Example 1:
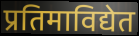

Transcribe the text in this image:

प्रतिमाविद्येत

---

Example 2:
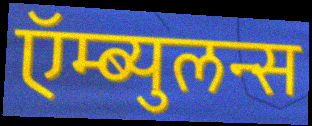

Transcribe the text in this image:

ऍम्ब्युलन्स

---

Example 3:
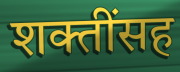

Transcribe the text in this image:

शक्तींसह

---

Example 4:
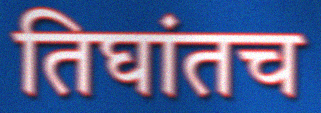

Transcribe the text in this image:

तिघांतच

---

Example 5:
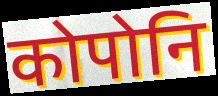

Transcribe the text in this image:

कोपोनि